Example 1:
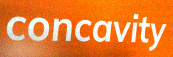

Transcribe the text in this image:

concavity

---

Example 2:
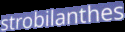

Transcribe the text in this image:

strobilanthes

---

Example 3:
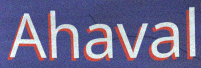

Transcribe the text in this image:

Ahaval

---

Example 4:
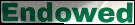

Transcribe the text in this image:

Endowed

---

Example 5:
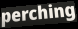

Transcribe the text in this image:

perching